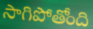
సాగిపోతోంది